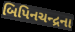
બિપિનચન્દ્રના